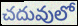
చదువులో